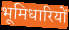
भूमिधारियों